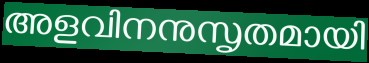
അളവിനനുസൃതമായി